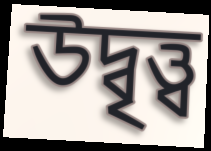
উদ্বৃত্ত্ব